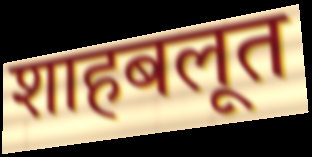
शाहबलूत